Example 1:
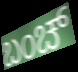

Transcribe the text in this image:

ಬಂಚ್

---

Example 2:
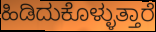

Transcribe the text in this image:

ಹಿಡಿದುಕೊಳ್ಳುತ್ತಾರೆ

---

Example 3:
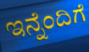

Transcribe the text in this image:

ಇನ್ನೆಂದಿಗೆ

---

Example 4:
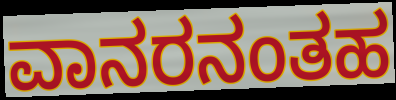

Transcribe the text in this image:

ವಾನರನಂತಹ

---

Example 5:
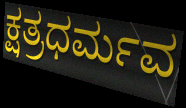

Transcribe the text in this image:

ಕ್ಷತ್ರಧರ್ಮವ